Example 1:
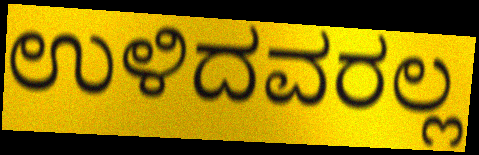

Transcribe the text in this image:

ಉಳಿದವರಲ್ಲ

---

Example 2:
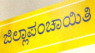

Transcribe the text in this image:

ಜಿಲ್ಲಾಪಂಚಾಯಿತಿ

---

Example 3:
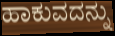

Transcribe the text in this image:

ಹಾಕುವದನ್ನು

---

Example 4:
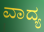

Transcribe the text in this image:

ವಾದ್ಯ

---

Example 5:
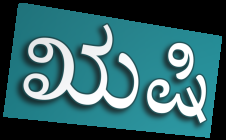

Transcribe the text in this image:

ಋಷಿ